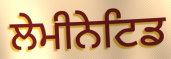
ਲੇਮੀਨੇਟਿਡ